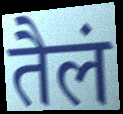
तैलं